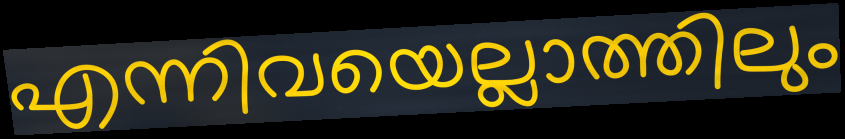
എന്നിവയെല്ലാത്തിലും